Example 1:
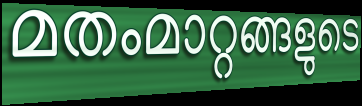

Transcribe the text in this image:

മതംമാറ്റങ്ങളുടെ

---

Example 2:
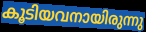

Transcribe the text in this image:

കൂടിയവനായിരുന്നു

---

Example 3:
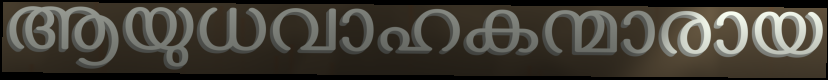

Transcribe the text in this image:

ആയുധവാഹകന്മാരായ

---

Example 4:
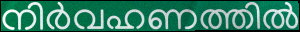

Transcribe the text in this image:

നിർവഹണത്തിൽ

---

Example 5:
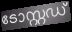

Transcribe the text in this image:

ടോസ്റ്റഡ്